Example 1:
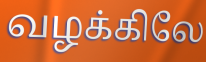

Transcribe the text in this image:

வழக்கிலே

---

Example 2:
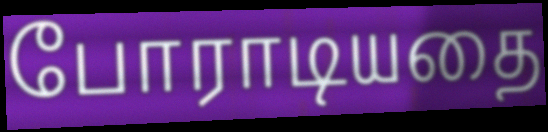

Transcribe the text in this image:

போராடியதை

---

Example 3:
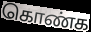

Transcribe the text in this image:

கொண்க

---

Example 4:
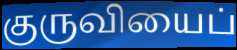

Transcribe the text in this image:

குருவியைப்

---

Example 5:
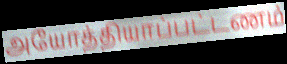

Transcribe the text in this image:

அயோத்தியாப்பட்டணம்